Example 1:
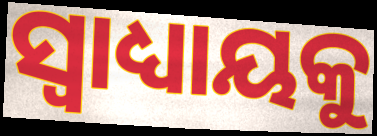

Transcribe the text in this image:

ସ୍ୱାଧ୍ୟାୟକୁ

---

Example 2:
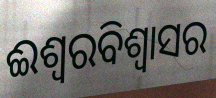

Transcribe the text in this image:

ଈଶ୍ୱରବିଶ୍ୱାସର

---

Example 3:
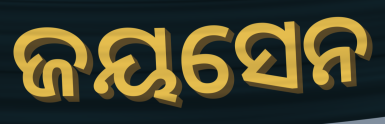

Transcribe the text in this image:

ଜୟସେନ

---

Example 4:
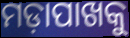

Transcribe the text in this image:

ମଡ଼ାପାଖକୁ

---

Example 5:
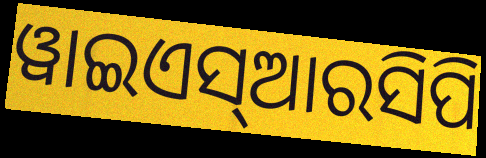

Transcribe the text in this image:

ୱାଇଏସ୍ଆରସିପି